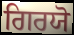
ਗਿਰਯੋ